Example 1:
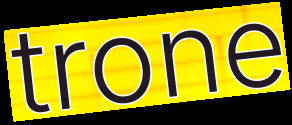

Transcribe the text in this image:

trone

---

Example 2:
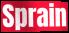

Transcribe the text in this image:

Sprain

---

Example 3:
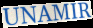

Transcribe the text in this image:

UNAMIR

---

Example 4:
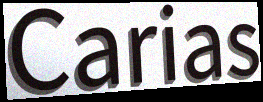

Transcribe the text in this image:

Carias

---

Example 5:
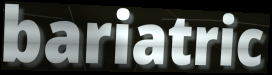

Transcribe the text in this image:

bariatric